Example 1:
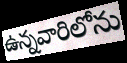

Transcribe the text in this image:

ఉన్నవారిలోను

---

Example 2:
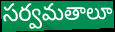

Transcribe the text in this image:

సర్వమతాలూ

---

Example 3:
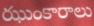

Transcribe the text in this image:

ఝుంకారాలు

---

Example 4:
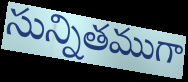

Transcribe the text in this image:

సున్నితముగా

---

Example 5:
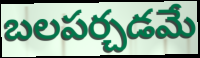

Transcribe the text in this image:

బలపర్చడమే